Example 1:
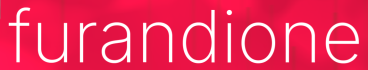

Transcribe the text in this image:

furandione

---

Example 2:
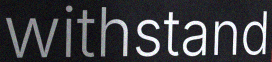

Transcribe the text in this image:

withstand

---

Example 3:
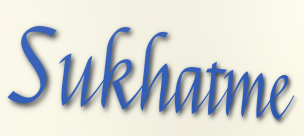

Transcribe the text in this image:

Sukhatme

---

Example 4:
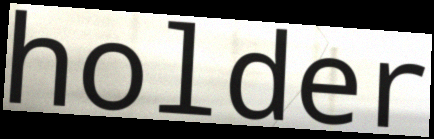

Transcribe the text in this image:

holder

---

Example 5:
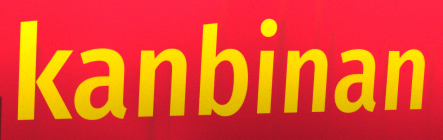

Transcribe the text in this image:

kanbinan